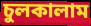
চুলকালাম